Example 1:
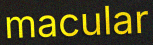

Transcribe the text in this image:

macular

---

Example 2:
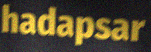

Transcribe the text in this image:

hadapsar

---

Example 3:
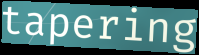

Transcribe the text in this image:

tapering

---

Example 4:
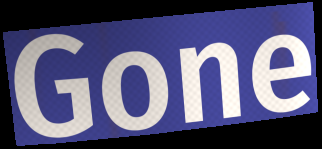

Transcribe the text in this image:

Gone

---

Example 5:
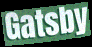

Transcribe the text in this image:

Gatsby